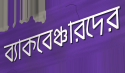
ব্যাকবেঞ্চারদের